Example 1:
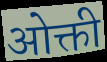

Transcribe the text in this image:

ओक्ती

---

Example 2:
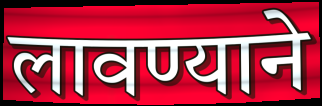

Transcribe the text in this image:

लावण्याने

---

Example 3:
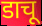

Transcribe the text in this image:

डाचू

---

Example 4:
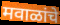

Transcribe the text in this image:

मवाळांचे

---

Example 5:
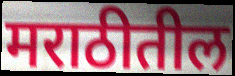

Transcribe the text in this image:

मराठीतील